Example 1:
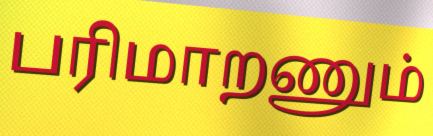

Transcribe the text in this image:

பரிமாறணும்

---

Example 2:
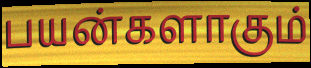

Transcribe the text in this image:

பயன்களாகும்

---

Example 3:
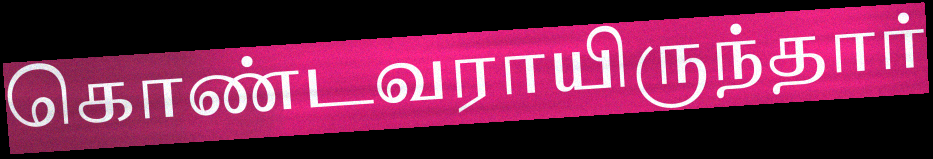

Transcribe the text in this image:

கொண்டவராயிருந்தார்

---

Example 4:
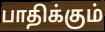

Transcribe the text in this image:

பாதிக்கும்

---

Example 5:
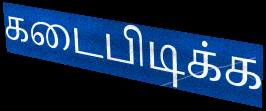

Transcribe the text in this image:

கடைபிடிக்க